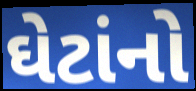
ઘેટાંનો